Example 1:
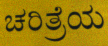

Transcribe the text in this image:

ಚರಿತ್ರೆಯ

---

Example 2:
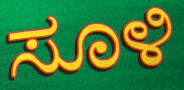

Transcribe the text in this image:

ಸೂಳಿ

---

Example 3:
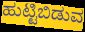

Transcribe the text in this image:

ಹುಟ್ಟಿಬಿಡುವ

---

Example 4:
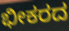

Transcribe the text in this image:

ಭೀಕರದ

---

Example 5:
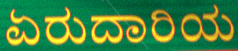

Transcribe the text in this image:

ಏರುದಾರಿಯ